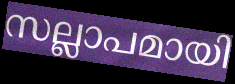
സല്ലാപമായി